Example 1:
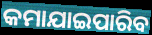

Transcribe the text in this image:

କମାଯାଇପାରିବ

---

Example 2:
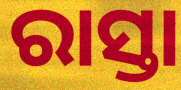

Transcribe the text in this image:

ରାସ୍ତା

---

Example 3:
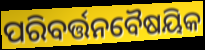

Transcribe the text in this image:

ପରିବର୍ତ୍ତନବୈଷୟିକ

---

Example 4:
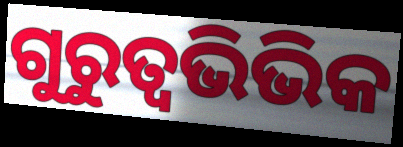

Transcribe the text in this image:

ଗୁରୁତ୍ଵଭିଭିକ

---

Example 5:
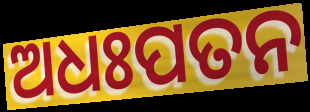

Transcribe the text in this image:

ଅଧଃପତନ